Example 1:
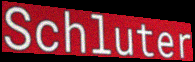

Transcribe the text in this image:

Schluter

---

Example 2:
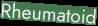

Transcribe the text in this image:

Rheumatoid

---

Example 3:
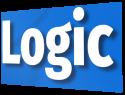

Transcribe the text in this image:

Logic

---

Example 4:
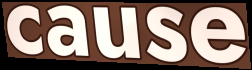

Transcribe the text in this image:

cause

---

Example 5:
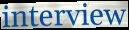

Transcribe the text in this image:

interview